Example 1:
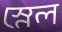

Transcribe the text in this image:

স্নেল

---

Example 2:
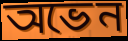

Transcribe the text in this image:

অভেন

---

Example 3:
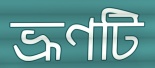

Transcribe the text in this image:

ভ্রূণটি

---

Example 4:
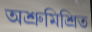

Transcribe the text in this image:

অশ্রুমিশ্রিত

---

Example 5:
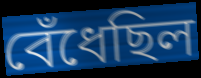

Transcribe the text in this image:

বেঁধেছিল